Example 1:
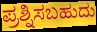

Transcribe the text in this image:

ಪ್ರಶ್ನಿಸಬಹುದು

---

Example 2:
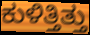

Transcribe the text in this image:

ಕುಳಿತ್ತಿತ್ತು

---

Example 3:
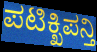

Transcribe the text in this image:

ಪಟಿಕ್ಖಿಪನ್ತಿ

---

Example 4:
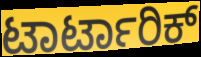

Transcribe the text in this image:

ಟಾರ್ಟಾರಿಕ್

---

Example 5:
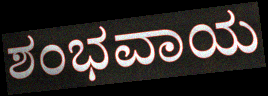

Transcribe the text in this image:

ಶಂಭವಾಯ